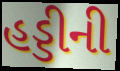
હડ્ડીની